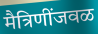
मैत्रिणींजवळ